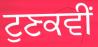
ਟੁਣਕਵੀਂ